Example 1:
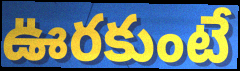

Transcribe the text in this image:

ఊరకుంటే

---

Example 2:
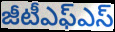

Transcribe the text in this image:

జీటీఎఫ్ఎస్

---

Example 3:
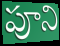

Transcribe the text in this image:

పూని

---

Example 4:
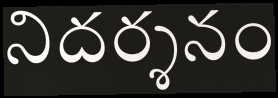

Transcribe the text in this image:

నిదర్శనం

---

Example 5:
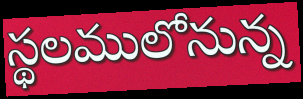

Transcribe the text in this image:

స్థలములోనున్న